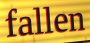
fallen